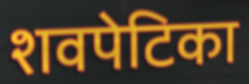
शवपेटिका